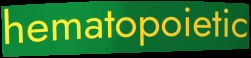
hematopoietic